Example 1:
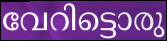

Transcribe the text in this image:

വേറിട്ടൊരു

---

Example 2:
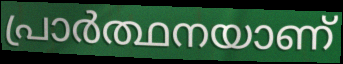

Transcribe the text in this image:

പ്രാർത്ഥനയാണ്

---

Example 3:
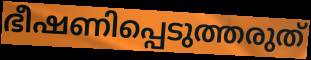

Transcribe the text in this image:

ഭീഷണിപ്പെടുത്തരുത്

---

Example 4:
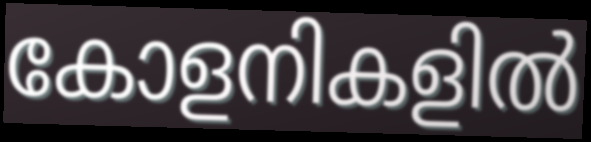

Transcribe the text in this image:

കോളനികളിൽ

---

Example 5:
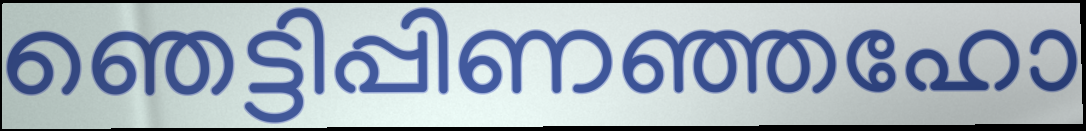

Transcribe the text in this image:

ഞെട്ടിപ്പിണഞ്ഞഹോ